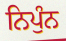
ਨਿਪੁੰਨ